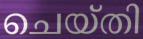
ചെയ്തി